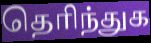
தெரிந்துக